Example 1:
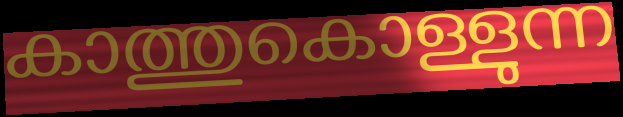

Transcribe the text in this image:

കാത്തുകൊള്ളുന്ന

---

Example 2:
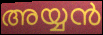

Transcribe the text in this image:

അയ്യൻ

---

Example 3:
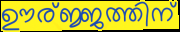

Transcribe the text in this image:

ഊര്ജ്ജത്തിന്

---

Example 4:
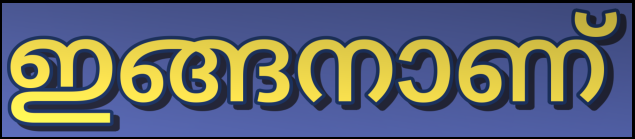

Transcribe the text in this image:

ഇങ്ങനാണ്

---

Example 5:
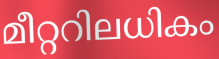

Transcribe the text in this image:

മീറ്ററിലധികം